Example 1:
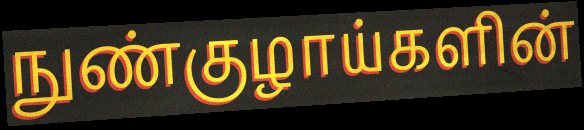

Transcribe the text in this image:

நுண்குழாய்களின்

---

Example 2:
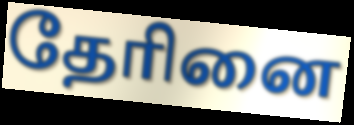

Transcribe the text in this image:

தேரினை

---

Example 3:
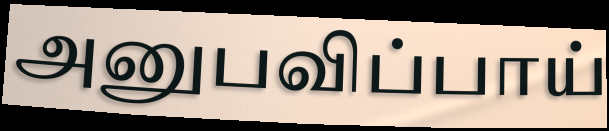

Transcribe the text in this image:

அனுபவிப்பாய்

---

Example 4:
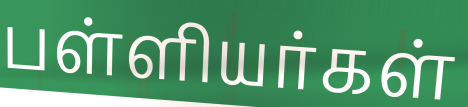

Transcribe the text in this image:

பள்ளியர்கள்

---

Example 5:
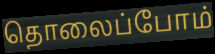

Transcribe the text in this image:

தொலைப்போம்